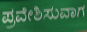
ಪ್ರವೇಶಿಸುವಾಗ